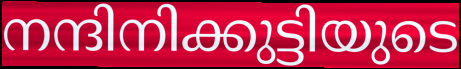
നന്ദിനിക്കുട്ടിയുടെ